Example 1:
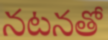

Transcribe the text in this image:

నటనతో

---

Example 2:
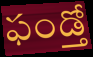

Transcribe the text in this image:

ఫండ్తో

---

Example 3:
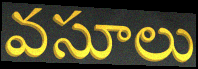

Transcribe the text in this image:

వసూలు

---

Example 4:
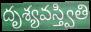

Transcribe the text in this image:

దృశ్యవస్త్వితి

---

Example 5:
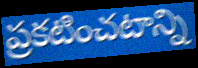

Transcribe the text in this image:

ప్రకటించటాన్ని